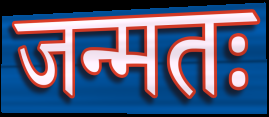
जन्मतः